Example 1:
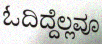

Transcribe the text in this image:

ಓದಿದ್ದೆಲ್ಲವೂ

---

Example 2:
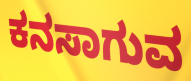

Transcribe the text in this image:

ಕನಸಾಗುವ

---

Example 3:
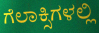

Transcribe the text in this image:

ಗೆಲಾಕ್ಸಿಗಳಲ್ಲಿ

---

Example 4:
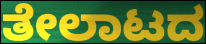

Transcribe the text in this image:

ತೇಲಾಟದ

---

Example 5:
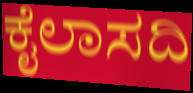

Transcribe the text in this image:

ಕೈಲಾಸದಿ